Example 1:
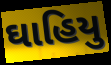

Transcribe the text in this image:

ઘાહિયુ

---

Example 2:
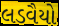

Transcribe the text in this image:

લડવૈયો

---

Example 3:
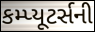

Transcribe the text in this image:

કમ્પ્યૂટર્સની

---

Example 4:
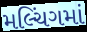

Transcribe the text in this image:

મલ્ચિંગમાં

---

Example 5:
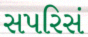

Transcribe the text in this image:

સપરિસં